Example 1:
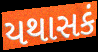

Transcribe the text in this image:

યથાસકં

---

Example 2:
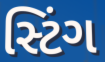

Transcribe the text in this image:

સ્ટિંગ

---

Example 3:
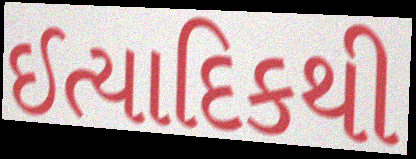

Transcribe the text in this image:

ઈત્યાદિકથી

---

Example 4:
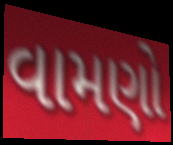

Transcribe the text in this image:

વામણો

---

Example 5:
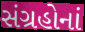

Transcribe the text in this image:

સંગ્રહોનાં